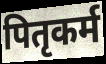
पितृकर्म